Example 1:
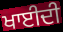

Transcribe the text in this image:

ਖਾਈਦੀ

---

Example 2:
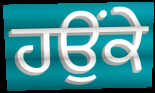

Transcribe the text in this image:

ਹਉਂਕੇ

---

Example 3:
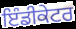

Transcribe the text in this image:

ਇੰਡੀਕੇਟਰ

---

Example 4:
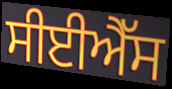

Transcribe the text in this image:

ਸੀਈਐੱਸ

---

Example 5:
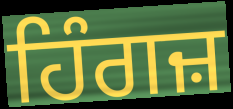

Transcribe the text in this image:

ਹਿੰਗਜ਼